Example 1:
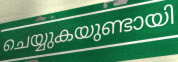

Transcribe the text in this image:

ചെയ്യുകയുണ്ടായി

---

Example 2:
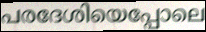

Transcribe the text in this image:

പരദേശിയെപ്പോലെ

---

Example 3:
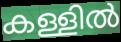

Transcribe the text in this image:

കള്ളിൽ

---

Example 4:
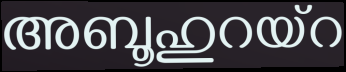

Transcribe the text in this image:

അബൂഹുറയ്റ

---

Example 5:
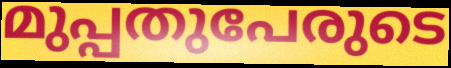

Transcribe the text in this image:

മുപ്പതുപേരുടെ